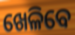
ଖେଳିବେ